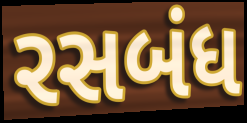
રસબંધ